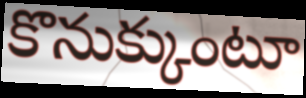
కొనుక్కుంటూ